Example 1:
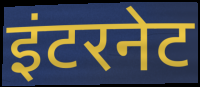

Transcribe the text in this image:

इंटरनेट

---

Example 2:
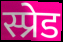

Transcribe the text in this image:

स्प्रेड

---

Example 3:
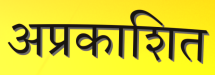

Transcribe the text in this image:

अप्रकाशित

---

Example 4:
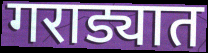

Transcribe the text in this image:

गराड्यात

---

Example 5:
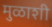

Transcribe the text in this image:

मुळाशी